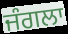
ਜੰਗਲਾ